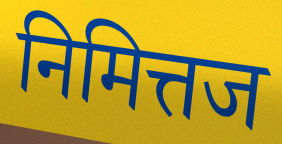
निमित्तज